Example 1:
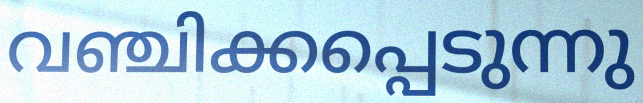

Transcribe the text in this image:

വഞ്ചിക്കപ്പെടുന്നു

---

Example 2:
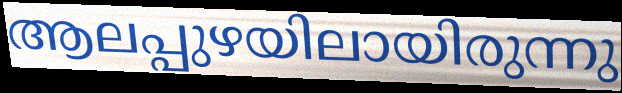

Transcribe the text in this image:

ആലപ്പുഴയിലായിരുന്നു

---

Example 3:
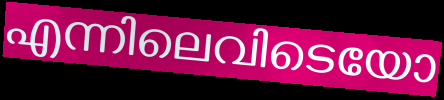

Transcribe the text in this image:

എന്നിലെവിടെയോ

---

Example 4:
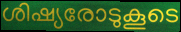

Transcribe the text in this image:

ശിഷ്യരോടുകൂടെ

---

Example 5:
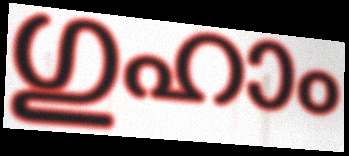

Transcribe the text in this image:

ഗുഹാം